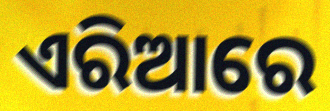
ଏରିଆରେ